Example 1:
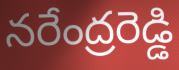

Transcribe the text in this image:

నరేంద్రరెడ్డి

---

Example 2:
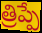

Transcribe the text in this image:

త్రిప్పే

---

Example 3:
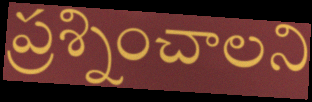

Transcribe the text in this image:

ప్రశ్నించాలని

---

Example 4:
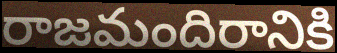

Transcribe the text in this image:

రాజమందిరానికి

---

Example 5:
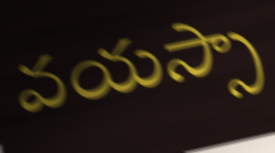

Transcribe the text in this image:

వయస్సా